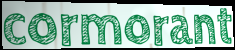
cormorant